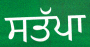
ਸਤੱਪਾ